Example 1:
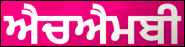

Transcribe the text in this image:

ਐਚਐਮਬੀ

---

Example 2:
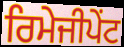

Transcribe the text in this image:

ਰਿਮੇਜੀਪੇਂਟ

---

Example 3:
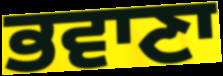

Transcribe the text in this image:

ਭਵਾਣਾ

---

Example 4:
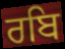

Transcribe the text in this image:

ਰਬਿ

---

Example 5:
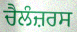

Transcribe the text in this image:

ਚੈਲੰਜ਼ਰਸ